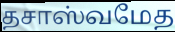
தசாஸ்வமேத